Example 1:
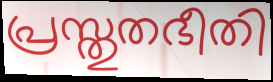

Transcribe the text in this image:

പ്രസ്തുതഭീതി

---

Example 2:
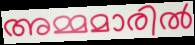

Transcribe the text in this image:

അമ്മമാരിൽ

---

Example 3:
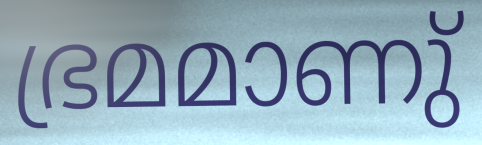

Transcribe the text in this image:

ഭ്രമമാണു്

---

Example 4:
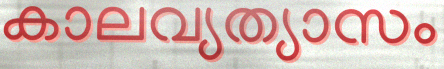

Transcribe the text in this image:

കാലവ്യത്യാസം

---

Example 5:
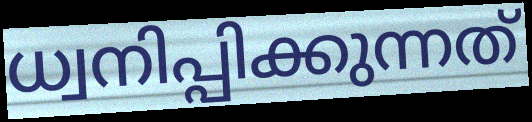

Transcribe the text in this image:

ധ്വനിപ്പിക്കുന്നത്